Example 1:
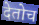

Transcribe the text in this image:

देतोच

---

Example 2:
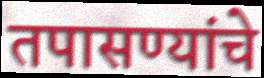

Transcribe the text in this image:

तपासण्यांचे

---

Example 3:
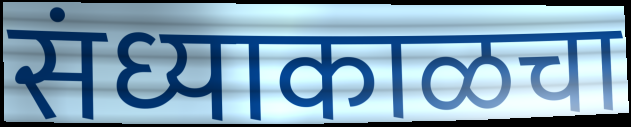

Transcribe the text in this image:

संध्याकाळचा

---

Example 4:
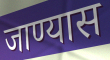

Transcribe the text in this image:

जाण्यास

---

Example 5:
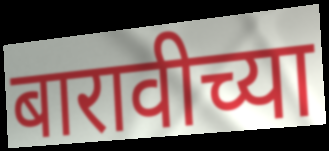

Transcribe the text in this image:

बारावीच्या